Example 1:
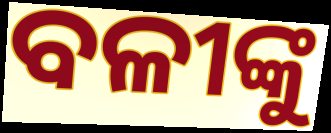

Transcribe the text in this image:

ବଳୀଙ୍କୁ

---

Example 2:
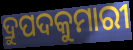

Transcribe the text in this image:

ଦ୍ରୁପଦକୁମାରୀ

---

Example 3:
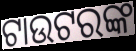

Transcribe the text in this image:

ଟାଉଟରଙ୍କ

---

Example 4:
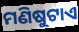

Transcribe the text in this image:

ମଣିଷୁଟାଏ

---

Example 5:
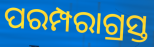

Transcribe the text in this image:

ପରମ୍ପରାଗ୍ରସ୍ତ